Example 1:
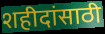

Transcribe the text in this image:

शहीदांसाठी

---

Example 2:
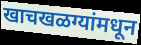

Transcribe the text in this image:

खाचखळग्यांमधून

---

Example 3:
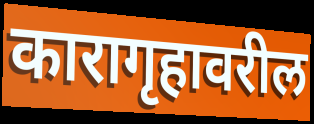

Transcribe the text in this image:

कारागृहावरील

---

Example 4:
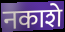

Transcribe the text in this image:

नकाशे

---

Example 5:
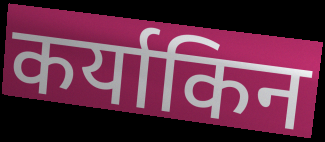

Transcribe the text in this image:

कर्याकिन